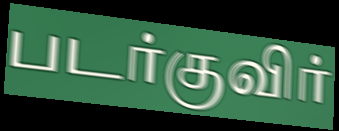
படர்குவிர்